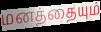
மனத்தையும்